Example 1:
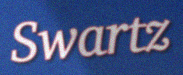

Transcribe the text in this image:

Swartz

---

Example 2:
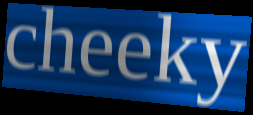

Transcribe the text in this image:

cheeky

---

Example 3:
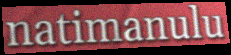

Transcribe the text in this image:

natimanulu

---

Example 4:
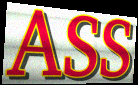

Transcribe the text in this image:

ASS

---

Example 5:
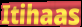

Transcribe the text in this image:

Itihaas